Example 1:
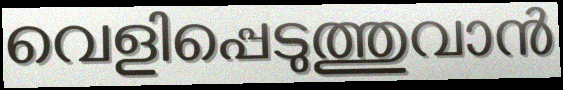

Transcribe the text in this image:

വെളിപ്പെടുത്തുവാൻ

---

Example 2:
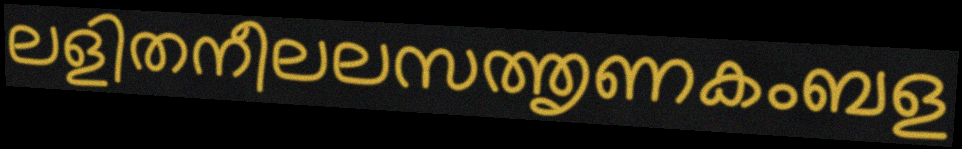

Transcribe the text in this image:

ലളിതനീലലസത്തൃണകംബള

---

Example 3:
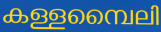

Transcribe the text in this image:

കള്ളമ്പൈലി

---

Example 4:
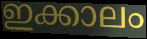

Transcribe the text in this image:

ഇക്കാലം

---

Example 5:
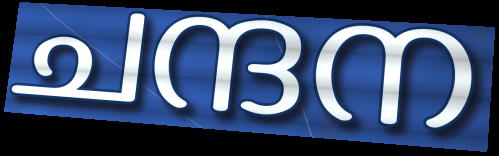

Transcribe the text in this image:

ചന്ദന